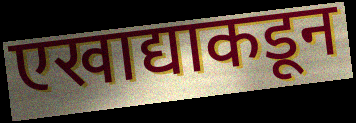
एखाद्याकडून